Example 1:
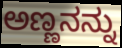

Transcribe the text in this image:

ಅಣ್ಣನನ್ನು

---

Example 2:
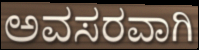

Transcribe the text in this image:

ಅವಸರವಾಗಿ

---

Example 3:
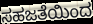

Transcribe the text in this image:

ಸಹಜತೆಯಿಂದ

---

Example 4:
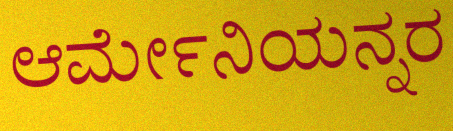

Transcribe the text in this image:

ಆರ್ಮೇನಿಯನ್ನರ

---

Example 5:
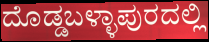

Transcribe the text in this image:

ದೊಡ್ಡಬಳ್ಳಾಪುರದಲ್ಲಿ